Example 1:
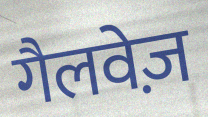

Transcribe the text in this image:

गैलवेज़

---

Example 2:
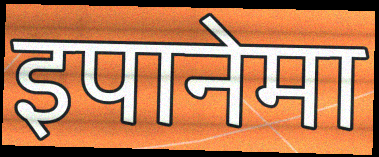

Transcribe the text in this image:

इपानेमा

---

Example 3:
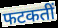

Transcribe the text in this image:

फटकतीं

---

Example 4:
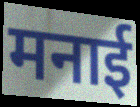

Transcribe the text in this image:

मनाई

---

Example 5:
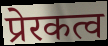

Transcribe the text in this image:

प्रेरकत्व